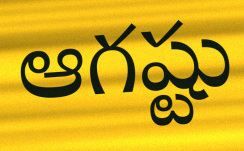
ఆగష్టు